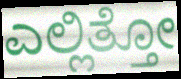
ಎಲ್ಲಿತ್ತೋ